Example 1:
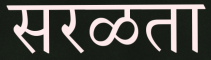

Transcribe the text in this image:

सरळता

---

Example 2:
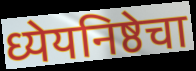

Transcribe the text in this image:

ध्येयनिष्ठेचा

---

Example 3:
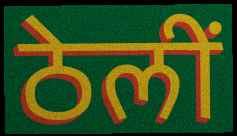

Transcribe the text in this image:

ठेलीं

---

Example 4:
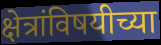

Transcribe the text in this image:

क्षेत्रांविषयीच्या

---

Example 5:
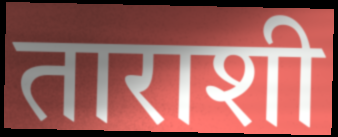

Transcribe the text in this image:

ताराशी